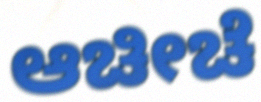
ಆಚೀಚೆ